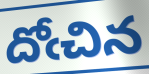
దోఁచిన